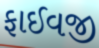
ફાઈવજી